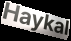
Haykal